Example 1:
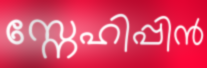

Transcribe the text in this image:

സ്നേഹിപ്പിൻ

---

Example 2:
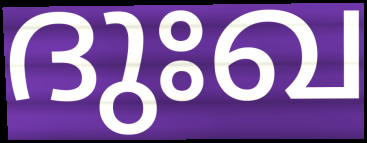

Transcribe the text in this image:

ദുഃഖ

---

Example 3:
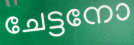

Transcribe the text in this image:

ചേട്ടനോ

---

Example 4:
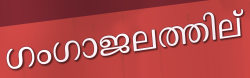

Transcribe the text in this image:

ഗംഗാജലത്തില്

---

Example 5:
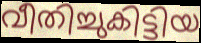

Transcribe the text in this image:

വീതിച്ചുകിട്ടിയ